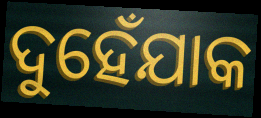
ଦୁହେଁଯାକ